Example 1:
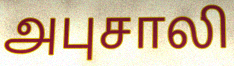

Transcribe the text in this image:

அபுசாலி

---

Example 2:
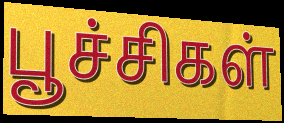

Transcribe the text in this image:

பூச்சிகள்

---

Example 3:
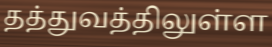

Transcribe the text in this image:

தத்துவத்திலுள்ள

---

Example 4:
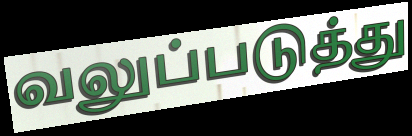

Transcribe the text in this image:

வலுப்படுத்து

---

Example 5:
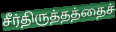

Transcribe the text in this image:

சீர்திருத்தத்தைச்